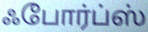
ஃபோர்ப்ஸ்